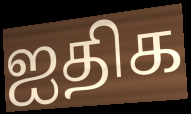
ஐதிக